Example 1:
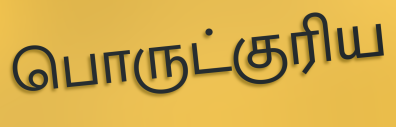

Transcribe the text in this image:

பொருட்குரிய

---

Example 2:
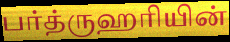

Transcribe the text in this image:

பர்த்ருஹரியின்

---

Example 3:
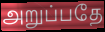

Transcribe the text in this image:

அறுப்பதே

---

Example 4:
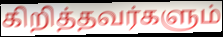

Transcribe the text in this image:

கிறித்தவர்களும்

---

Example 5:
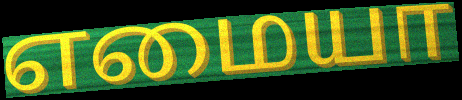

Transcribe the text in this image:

எமையா